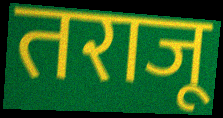
तराजू